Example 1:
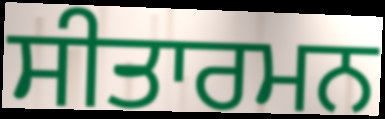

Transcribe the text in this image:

ਸੀਤਾਰਮਨ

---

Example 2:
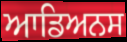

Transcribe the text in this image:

ਆਡਿਅਨਸ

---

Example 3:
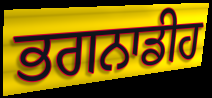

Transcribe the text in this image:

ਭਗਨਾਡੀਹ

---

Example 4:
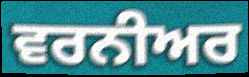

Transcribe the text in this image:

ਵਰਨੀਅਰ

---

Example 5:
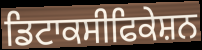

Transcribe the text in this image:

ਡਿਟਾਕਸੀਫਿਕੇਸ਼ਨ